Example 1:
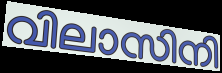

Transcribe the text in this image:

വിലാസിനി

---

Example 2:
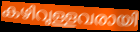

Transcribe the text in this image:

കഴിവുള്ളവരായി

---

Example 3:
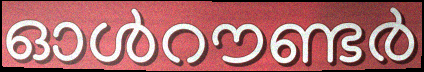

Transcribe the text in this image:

ഓൾറൗണ്ടർ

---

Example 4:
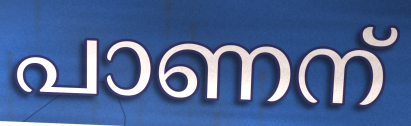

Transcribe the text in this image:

പാണന്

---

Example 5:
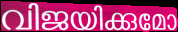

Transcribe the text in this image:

വിജയിക്കുമോ